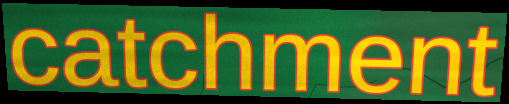
catchment